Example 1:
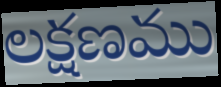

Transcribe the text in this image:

లక్షణము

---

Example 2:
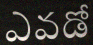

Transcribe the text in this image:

ఎవడో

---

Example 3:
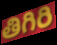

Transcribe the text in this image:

తిగిరి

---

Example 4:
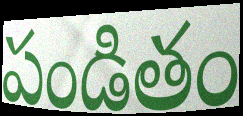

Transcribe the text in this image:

పండితం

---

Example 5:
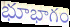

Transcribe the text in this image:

భూభాగం